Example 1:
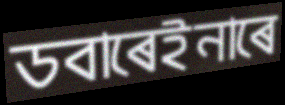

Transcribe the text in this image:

ডবাৰেইনাৰে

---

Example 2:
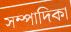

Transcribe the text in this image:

সম্পাদিকা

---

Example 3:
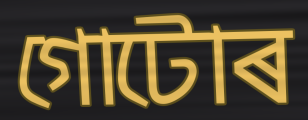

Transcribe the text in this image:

গোটোৰ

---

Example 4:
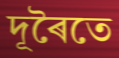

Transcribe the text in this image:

দূৰৈতে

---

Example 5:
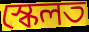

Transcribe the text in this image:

স্কেলত